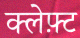
क्लेफ़्ट